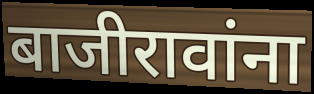
बाजीरावांना